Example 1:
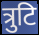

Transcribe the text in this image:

त्रुटि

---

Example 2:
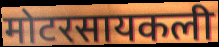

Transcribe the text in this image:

मोटरसायकली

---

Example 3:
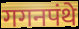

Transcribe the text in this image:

गगनपंथे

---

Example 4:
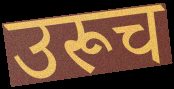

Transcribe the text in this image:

उरूच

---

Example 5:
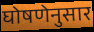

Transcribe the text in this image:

घोषणेनुसार